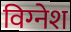
विग्‍नेश